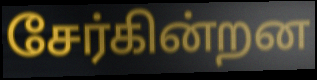
சேர்கின்றன